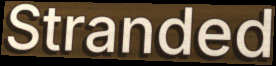
Stranded